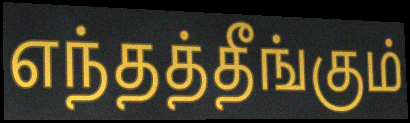
எந்தத்தீங்கும்